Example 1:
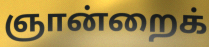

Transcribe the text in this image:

ஞான்றைக்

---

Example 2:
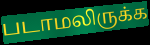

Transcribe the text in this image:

படாமலிருக்க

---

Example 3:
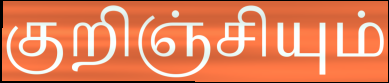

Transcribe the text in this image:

குறிஞ்சியும்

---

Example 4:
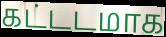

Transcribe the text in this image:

கட்டடமாக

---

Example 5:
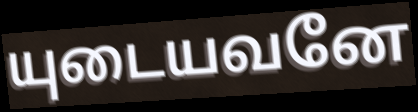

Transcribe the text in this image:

யுடையவனே